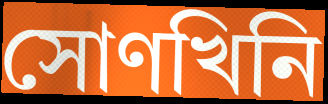
সোণখিনি